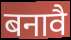
बनावै